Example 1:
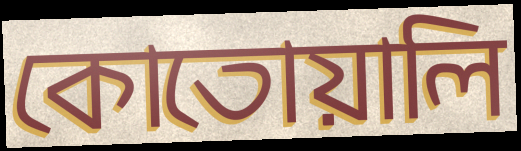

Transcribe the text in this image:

কোতোয়ালি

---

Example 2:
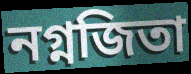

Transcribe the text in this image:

নগ্নজিতা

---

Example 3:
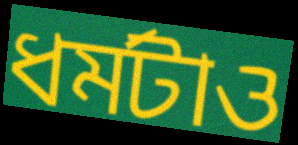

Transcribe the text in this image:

ধর্মটাও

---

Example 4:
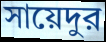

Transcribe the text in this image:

সায়েদুর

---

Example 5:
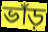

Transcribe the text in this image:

ভাঁড়